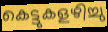
കെട്ടുകളഴിച്ചു